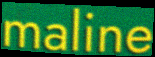
maline